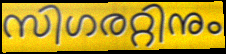
സിഗരറ്റിനും